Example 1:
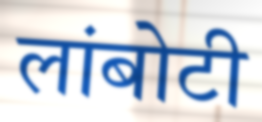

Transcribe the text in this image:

लांबोटी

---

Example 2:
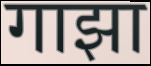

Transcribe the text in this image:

गाझा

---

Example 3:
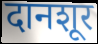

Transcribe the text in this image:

दानशूर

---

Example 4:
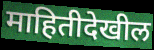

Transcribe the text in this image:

माहितीदेखील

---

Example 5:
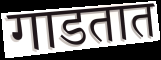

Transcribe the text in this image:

गाडतात